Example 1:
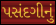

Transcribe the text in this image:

પસંદગીનું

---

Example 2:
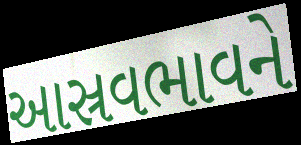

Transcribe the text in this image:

આસ્રવભાવને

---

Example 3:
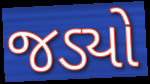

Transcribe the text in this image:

જડ્યો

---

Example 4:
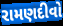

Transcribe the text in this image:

રામણદીવો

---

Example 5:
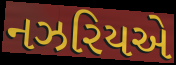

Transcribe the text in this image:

નઝરિયએ